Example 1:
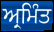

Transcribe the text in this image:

ਅ੍ਰਮਿੰਤ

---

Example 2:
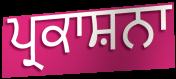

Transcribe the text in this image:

ਪ੍ਰਕਾਸ਼ਨਾ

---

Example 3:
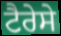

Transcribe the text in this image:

ਟੈਰੇਸੇ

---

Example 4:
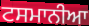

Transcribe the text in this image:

ਟਸਮਾਨੀਆ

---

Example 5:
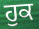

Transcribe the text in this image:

ਹੁਕ